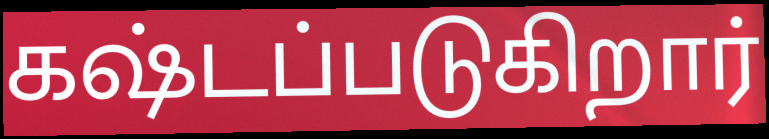
கஷ்டப்படுகிறார்